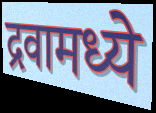
द्रवामध्ये